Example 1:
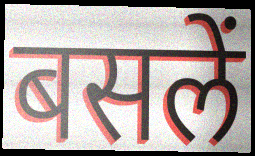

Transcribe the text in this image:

बसलें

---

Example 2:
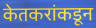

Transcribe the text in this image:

केतकरांकडून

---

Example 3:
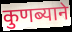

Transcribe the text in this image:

कुणब्याने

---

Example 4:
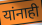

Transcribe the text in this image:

यांनाही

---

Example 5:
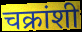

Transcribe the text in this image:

चक्रांशी